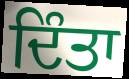
ਦਿੰਤਾ